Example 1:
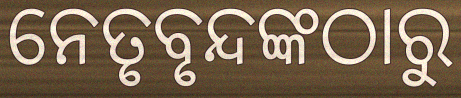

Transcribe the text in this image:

ନେତୃବୃନ୍ଦଙ୍କଠାରୁ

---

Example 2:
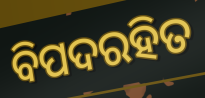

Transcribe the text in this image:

ବିପଦରହିତ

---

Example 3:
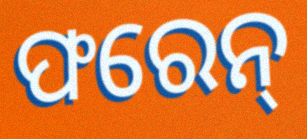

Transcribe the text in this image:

ଫରେନ୍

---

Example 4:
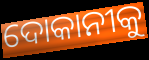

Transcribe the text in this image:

ଦୋକାନୀକୁ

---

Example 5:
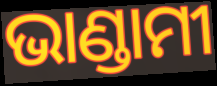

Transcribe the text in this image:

ଭାଣ୍ଡାମୀ